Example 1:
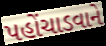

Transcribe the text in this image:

પહોંચાડવાને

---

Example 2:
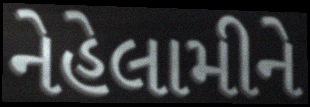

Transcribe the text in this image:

નેહેલામીને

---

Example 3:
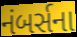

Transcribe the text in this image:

નંબર્સના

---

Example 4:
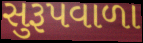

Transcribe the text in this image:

સુરૂપવાળા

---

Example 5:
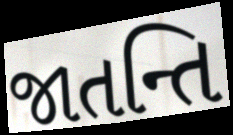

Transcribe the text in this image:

જાતન્તિ